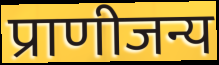
प्राणीजन्य